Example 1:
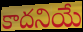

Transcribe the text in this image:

కాదనియే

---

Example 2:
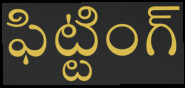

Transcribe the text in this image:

ఫిట్టింగ్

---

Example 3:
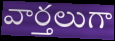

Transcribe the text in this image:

వార్తలుగా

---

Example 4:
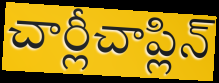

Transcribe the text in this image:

చార్లీచాప్లిన్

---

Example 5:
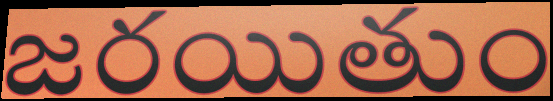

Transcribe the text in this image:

జరయితుం